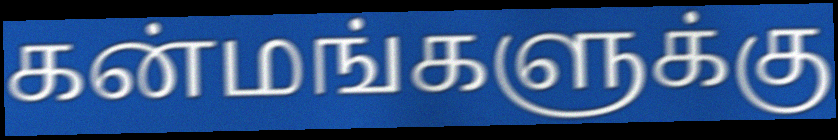
கன்மங்களுக்கு